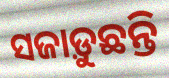
ସଜାଡ଼ୁଛନ୍ତି